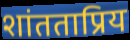
शांतताप्रिय